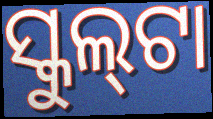
ସ୍କୁଲ୍‍ଟା